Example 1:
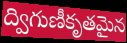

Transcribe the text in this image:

ద్విగుణీకృతమైన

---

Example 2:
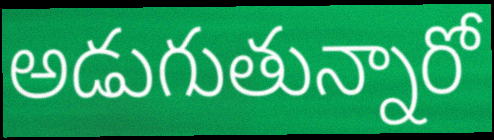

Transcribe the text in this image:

అడుగుతున్నారో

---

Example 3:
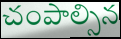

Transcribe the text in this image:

చంపాల్సిన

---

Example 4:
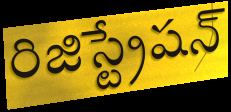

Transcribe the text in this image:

రిజిస్ట్రేషన్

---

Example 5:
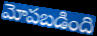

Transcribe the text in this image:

మోపబడింది